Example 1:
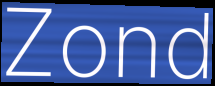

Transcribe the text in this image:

Zond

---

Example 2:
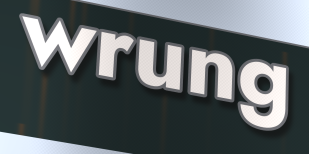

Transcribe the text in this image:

wrung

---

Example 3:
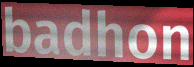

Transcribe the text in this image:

badhon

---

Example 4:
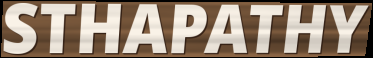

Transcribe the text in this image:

STHAPATHY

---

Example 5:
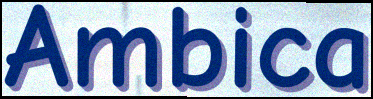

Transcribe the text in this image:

Ambica